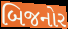
બિજનોર